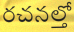
రచనల్తో